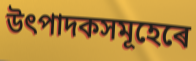
উৎপাদকসমূহেৰে